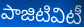
పాజిటివిటీ